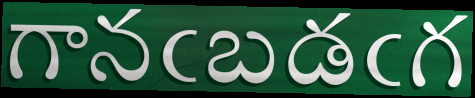
గానఁబడఁగ